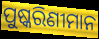
ପୁଷ୍କରିଣୀମାନ